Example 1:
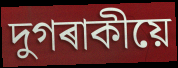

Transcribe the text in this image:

দুগৰাকীয়ে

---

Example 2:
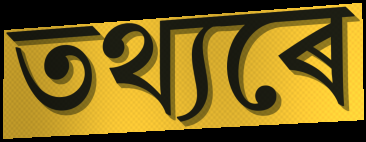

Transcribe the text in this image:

তথ্যৰে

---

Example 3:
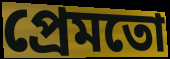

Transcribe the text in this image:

প্ৰেমতো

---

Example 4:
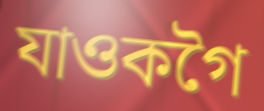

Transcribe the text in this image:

যাওকগৈ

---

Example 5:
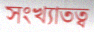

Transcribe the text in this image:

সংখ্যাতত্ব